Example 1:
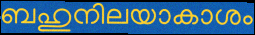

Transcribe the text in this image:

ബഹുനിലയാകാശം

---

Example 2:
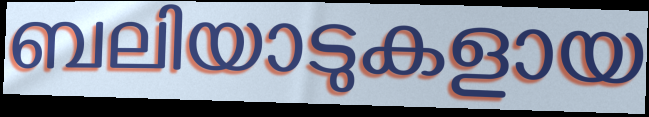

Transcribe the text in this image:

ബലിയാടുകളായ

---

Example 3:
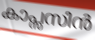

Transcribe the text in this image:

കാപ്സസിൻ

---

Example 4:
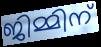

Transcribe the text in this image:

ജിമ്മിന്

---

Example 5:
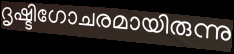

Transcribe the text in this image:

ദൃഷ്ടിഗോചരമായിരുന്നു